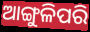
ଆଙ୍ଗୁଳିପରି